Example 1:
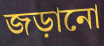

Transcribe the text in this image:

জড়ানো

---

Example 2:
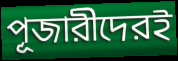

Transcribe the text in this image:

পূজারীদেরই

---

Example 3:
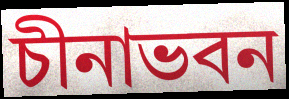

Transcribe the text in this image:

চীনাভবন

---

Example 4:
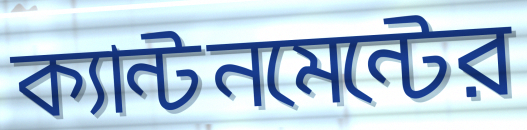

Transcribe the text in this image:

ক্যান্টনমেন্টের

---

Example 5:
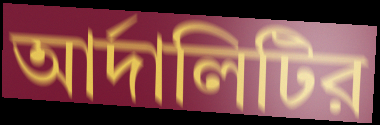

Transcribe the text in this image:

আর্দালিটির